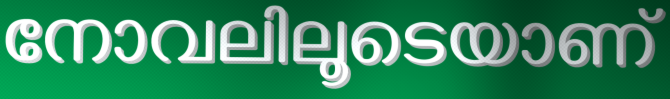
നോവലിലൂടെയാണ്